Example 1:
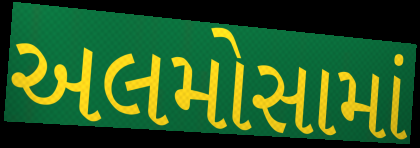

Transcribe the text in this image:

અલમોસામાં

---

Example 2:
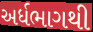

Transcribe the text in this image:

અર્ધભાગથી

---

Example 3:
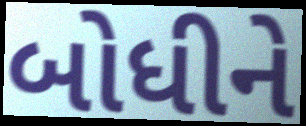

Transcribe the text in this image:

બોધીને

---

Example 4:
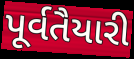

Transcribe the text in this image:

પૂર્વતૈયારી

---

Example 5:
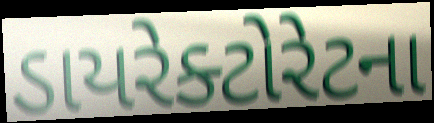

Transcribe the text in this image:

ડાયરેક્ટોરેટના